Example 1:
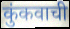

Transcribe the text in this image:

कुंकवाची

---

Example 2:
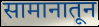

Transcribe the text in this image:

सामानातून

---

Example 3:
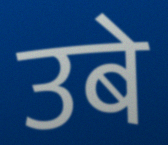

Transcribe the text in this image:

उबे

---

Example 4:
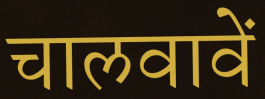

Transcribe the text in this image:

चालवावें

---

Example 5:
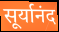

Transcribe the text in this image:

सूर्यानंद